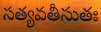
సత్యవతీసుతః